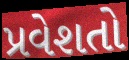
પ્રવેશતો